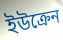
ইউক্রেন